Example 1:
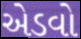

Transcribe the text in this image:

એડવો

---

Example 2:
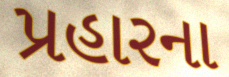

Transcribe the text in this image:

પ્રહારના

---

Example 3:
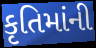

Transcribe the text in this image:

કૃતિમાંની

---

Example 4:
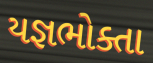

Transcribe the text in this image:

યજ્ઞભોક્તા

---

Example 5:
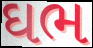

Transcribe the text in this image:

ઘભ